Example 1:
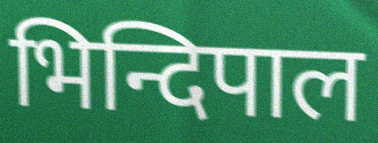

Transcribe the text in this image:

भिन्दिपाल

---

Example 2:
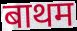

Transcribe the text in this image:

बाथम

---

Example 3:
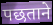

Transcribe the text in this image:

पछताने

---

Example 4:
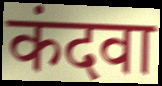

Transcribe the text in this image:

कंदवा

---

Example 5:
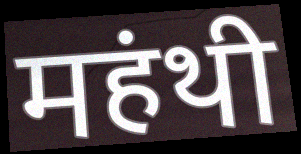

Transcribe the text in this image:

महंथी